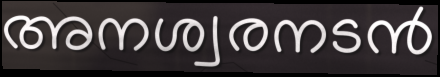
അനശ്വരനടൻ